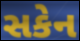
સકેન